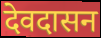
देवदासन